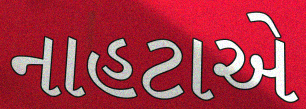
નાહટાએ